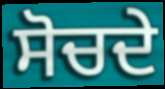
ਸੋਚਦੇ